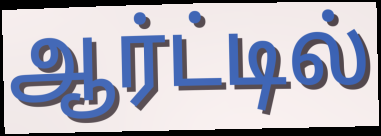
ஆர்ட்டில்